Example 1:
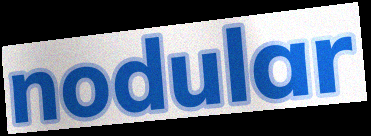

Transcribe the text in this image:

nodular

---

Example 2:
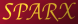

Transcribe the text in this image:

SPARX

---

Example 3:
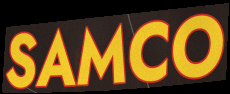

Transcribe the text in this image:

SAMCO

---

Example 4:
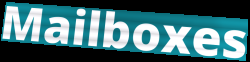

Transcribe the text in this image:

Mailboxes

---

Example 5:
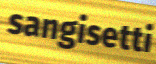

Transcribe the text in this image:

sangisetti